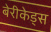
बेरीकेड्स